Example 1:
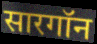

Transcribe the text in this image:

सारगॉन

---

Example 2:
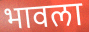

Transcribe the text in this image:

भावला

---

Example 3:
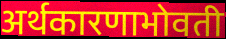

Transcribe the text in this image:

अर्थकारणाभोवती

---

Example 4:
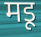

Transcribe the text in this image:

मडू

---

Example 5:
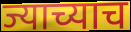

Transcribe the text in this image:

ज्याच्याच